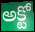
అక్టో